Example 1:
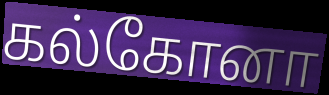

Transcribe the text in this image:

கல்கோனா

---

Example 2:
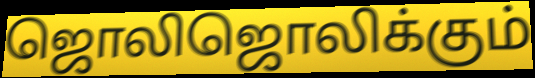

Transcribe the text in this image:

ஜொலிஜொலிக்கும்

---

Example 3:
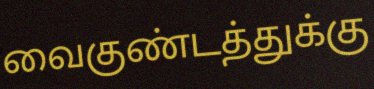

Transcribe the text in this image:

வைகுண்டத்துக்கு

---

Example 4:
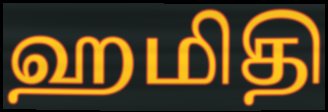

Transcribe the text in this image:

ஹமிதி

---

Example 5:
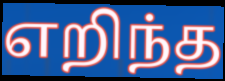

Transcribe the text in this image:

எறிந்த